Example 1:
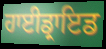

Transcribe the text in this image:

ਹਾਈਡ੍ਰਾਇਡ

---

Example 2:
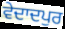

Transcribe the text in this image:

ਵੇਦਾਦਪੁਰ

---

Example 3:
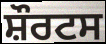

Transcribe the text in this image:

ਸ਼ੌਰਟਸ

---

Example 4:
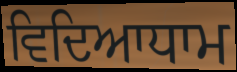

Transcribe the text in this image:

ਵਿਦਿਆਧਾਮ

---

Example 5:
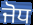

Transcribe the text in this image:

ਜੋਧ